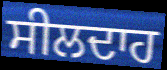
ਸੀਲਦਾਹ